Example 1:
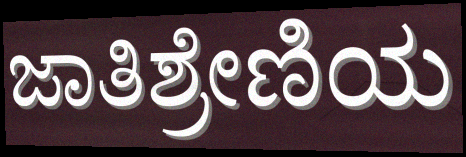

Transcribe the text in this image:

ಜಾತಿಶ್ರೇಣಿಯ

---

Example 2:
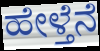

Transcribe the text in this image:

ಹೇಳ್ತೆನೆ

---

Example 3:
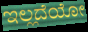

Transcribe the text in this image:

ಇಲ್ಲದೆಯೋ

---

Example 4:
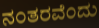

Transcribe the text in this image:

ನಂತರವೆಂದು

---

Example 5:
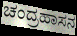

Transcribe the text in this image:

ಚಂದ್ರಹಾಸನ